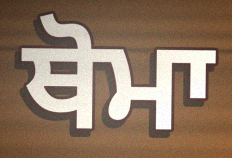
ਥੋਮਾ